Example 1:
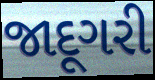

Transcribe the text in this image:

જાદૂગરી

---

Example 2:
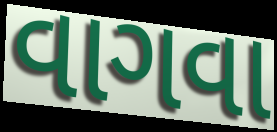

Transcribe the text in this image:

વાગવા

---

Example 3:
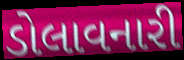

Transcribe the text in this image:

ડોલાવનારી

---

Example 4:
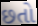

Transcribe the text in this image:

છતો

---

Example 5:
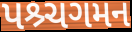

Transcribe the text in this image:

પશ્ર્ચગમન